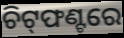
ଚିଟ୍‌ଫଣ୍ଟରେ